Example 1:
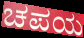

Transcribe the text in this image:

ಚಪಯ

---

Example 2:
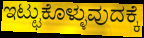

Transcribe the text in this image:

ಇಟ್ಟುಕೊಳ್ಳುವುದಕ್ಕೆ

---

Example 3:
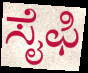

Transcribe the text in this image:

ಸೈಫಿ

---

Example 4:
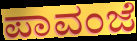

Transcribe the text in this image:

ಪಾವಂಜೆ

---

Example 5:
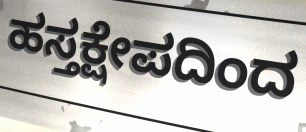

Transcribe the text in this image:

ಹಸ್ತಕ್ಷೇಪದಿಂದ